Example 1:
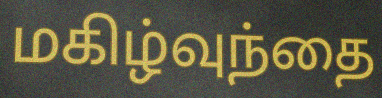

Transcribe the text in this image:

மகிழ்வுந்தை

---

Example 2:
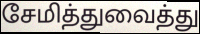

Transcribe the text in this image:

சேமித்துவைத்து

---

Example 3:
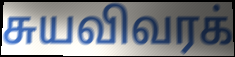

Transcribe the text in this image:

சுயவிவரக்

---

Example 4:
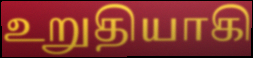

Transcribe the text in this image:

உறுதியாகி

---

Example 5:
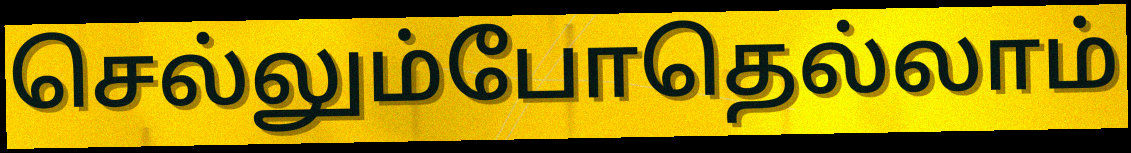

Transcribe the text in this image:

செல்லும்போதெல்லாம்